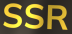
SSR